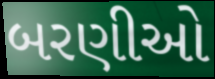
બરણીઓ